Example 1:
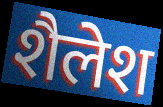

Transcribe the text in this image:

शैलेश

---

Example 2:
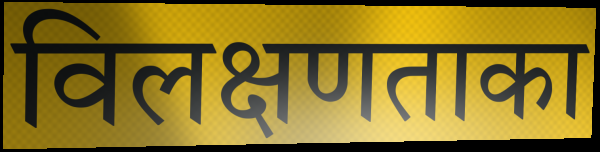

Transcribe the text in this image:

विलक्षणताका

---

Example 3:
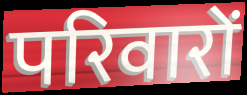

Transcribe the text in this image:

परिवारों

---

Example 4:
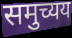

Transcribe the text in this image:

समुच्यय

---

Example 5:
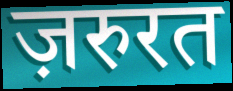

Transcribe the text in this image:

ज़रुरत